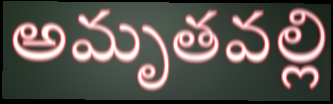
అమృతవల్లి